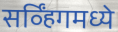
सर्व्हिंगमध्ये